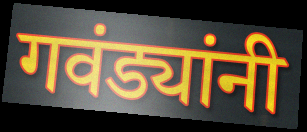
गवंड्यांनी